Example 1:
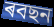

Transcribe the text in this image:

ৰবছন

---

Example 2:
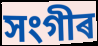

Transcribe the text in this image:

সংগীৰ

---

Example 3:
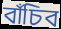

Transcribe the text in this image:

বাঁচিব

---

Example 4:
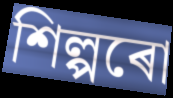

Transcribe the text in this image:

শিল্পৰো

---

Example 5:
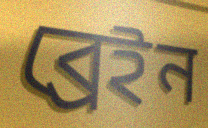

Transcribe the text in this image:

ব্ৰেইন